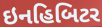
ઇનહિબિટર